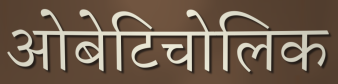
ओबेटिचोलिक